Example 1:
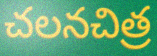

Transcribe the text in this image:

చలనచిత్ర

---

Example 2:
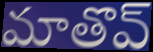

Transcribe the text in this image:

మాతొవ్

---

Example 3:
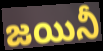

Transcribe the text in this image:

జయినీ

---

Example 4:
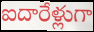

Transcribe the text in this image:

ఐదారేళ్లుగా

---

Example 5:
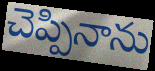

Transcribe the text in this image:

చెప్పినాను